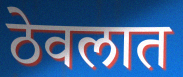
ठेवलात